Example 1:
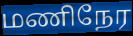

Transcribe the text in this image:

மணிநேர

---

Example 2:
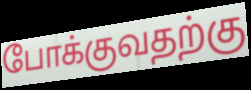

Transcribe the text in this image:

போக்குவதற்கு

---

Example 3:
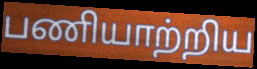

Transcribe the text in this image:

பணியாற்றிய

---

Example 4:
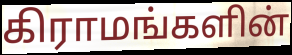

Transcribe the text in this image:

கிராமங்களின்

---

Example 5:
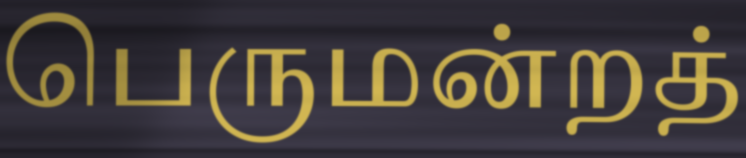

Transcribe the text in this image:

பெருமன்றத்